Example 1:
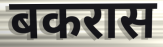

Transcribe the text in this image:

बकरास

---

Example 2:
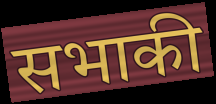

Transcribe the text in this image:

सभाकी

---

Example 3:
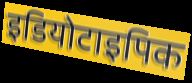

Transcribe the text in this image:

इडियोटाइपिक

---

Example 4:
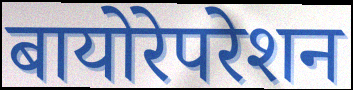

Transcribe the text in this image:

बायोरेपरेशन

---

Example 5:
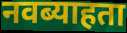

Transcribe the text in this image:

नवब्याहता